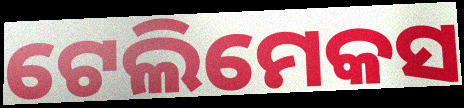
ଟେଲିମେକସ